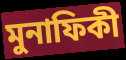
মুনাফিকী